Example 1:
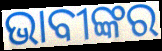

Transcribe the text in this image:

ଭାବୀଙ୍କର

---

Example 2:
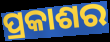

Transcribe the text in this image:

ପ୍ରକାଶର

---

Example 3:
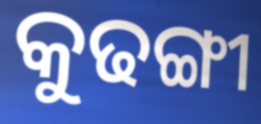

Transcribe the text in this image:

କୁଢଙ୍ଗୀ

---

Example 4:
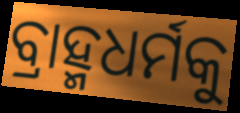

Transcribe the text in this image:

ବ୍ରାହ୍ମଧର୍ମକୁ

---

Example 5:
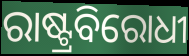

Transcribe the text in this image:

ରାଷ୍ଟ୍ରବିରୋଧୀ